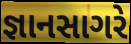
જ્ઞાનસાગરે